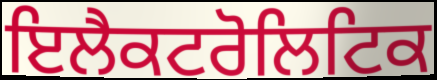
ਇਲੈਕਟਰੋਲਿਟਿਕ